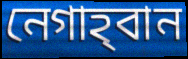
নেগাহ্‌বান